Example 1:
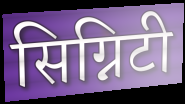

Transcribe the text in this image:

सिग्निटी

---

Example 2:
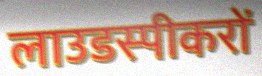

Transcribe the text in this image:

लाउडस्पीकरों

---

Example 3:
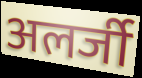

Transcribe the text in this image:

अलर्जी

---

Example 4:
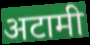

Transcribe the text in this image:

अटामी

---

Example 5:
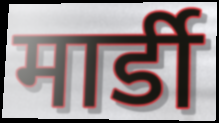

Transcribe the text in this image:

मार्डी